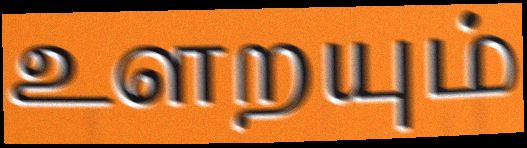
உளறயும்